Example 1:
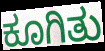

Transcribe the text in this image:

ಕೂಗಿತು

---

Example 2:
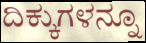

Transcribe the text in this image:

ದಿಕ್ಕುಗಳನ್ನೂ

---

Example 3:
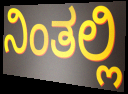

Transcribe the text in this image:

ನಿಂತಲ್ಲಿ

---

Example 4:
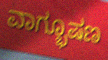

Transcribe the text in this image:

ವಾಗ್ಭೂಷಣ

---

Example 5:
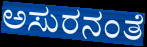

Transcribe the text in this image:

ಅಸುರನಂತೆ